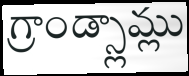
గ్రాండ్స్లామ్లు